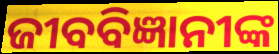
ଜୀବବିଜ୍ଞାନୀଙ୍କ